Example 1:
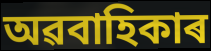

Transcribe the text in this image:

অৱবাহিকাৰ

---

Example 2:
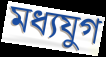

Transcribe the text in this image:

মধ্যযুগ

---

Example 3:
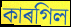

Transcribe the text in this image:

কাৰগিল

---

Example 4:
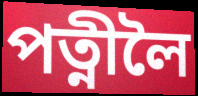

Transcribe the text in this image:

পত্নীলৈ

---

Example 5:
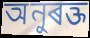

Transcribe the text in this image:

অনুৰক্ত